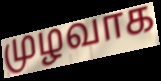
முழவாக